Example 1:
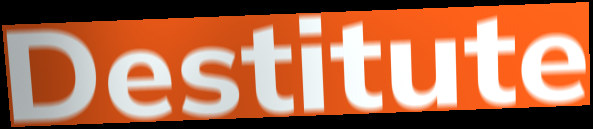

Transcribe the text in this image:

Destitute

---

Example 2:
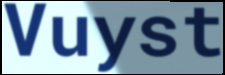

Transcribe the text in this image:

Vuyst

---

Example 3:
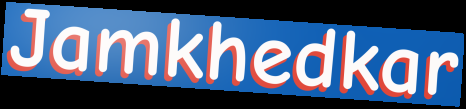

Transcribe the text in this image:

Jamkhedkar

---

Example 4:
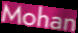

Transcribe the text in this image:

Mohan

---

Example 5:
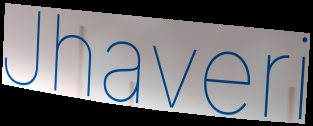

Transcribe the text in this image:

Jhaveri